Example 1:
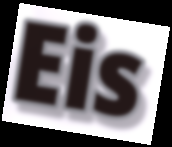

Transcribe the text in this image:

Eis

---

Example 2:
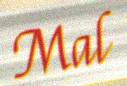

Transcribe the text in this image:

Mal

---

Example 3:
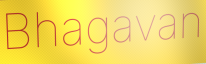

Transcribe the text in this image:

Bhagavan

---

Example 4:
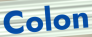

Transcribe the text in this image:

Colon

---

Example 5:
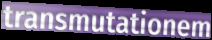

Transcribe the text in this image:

transmutationem